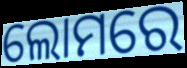
ଲୋମରେ